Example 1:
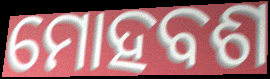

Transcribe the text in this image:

ମୋହବଶ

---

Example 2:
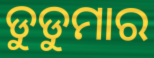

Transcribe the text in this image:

ଡୁଡୁମାର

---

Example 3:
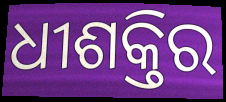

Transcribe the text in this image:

ଧୀଶକ୍ତିର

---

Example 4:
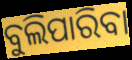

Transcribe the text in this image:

ବୁଲିପାରିବା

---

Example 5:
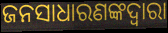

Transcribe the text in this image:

ଜନସାଧାରଣଙ୍କଦ୍ବାରା